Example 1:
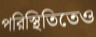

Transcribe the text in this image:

পরিস্থিতিতেও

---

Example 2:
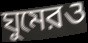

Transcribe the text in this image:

ঘুমেরও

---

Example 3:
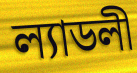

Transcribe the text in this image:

ল্যাডলী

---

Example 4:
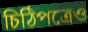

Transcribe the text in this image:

চিঠিপত্রেও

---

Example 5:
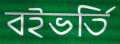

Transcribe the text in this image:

বইভর্তি